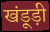
खंड़ूड़ी